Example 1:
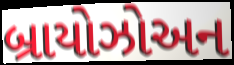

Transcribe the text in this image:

બ્રાયોઝોઅન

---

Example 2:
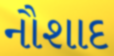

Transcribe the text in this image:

નૌશાદ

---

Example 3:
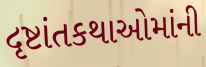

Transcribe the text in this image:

દૃષ્ટાંતકથાઓમાંની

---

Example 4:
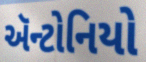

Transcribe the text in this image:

ઍન્ટોનિયો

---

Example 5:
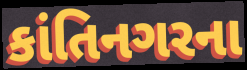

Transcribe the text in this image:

કાંતિનગરના